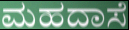
ಮಹದಾಸೆ